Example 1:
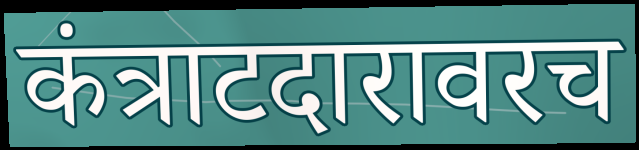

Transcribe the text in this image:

कंत्राटदारावरच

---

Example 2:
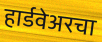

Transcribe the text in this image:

हार्डवेअरचा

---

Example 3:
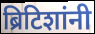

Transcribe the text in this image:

ब्रिटिशांनी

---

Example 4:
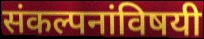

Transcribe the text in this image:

संकल्पनांविषयी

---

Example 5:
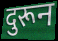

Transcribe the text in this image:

दुरून